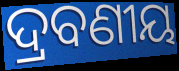
ଦ୍ରବଣୀୟ